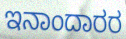
ಇನಾಂದಾರರ